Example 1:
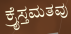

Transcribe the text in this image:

ಕ್ರೈಸ್ತಮತವು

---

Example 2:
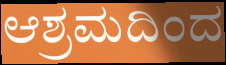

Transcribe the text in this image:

ಆಶ್ರಮದಿಂದ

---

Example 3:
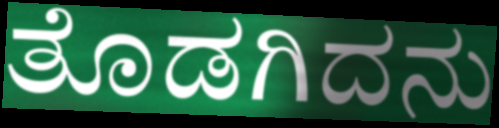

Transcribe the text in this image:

ತೊಡಗಿದನು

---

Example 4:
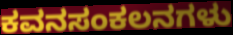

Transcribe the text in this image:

ಕವನಸಂಕಲನಗಳು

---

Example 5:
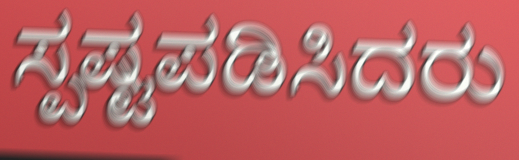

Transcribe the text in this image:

ಸ್ಪಷ್ಟಪಡಿಸಿದರು